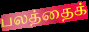
பலத்தைக்